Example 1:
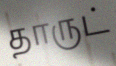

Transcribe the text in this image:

தாருட்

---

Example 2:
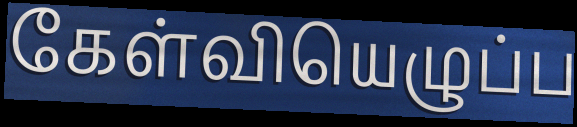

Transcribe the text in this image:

கேள்வியெழுப்ப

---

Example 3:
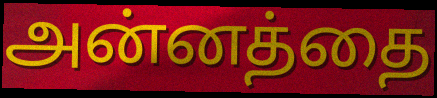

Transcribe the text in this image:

அன்னத்தை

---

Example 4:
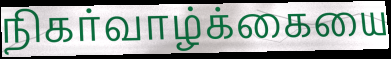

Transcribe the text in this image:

நிகர்வாழ்க்கையை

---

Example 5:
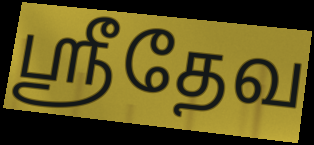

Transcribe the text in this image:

ஸ்ரீதேவ